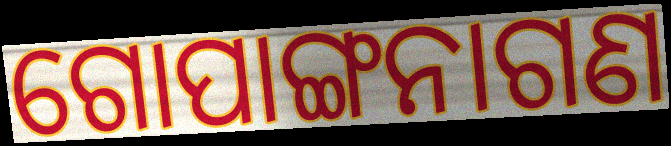
ଗୋପାଙ୍ଗନାଗଣ